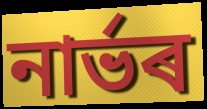
নাৰ্ভৰ